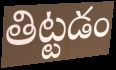
తిట్టడం